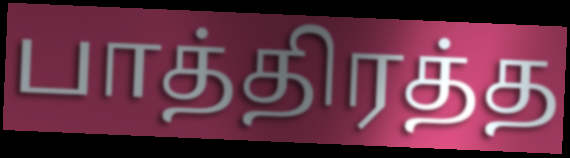
பாத்திரத்த